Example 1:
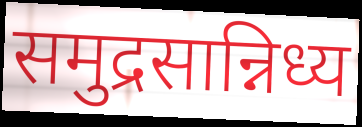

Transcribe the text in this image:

समुद्रसान्निध्य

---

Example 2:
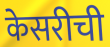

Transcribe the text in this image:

केसरीची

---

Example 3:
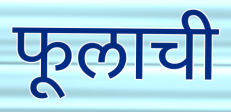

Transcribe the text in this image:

फूलाची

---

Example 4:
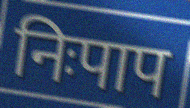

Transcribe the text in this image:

निःपाप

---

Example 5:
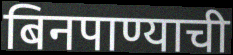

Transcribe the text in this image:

बिनपाण्याची